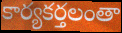
కార్యకర్తలంతా